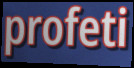
profeti